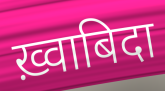
ख़्वाबिदा